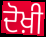
ਦੋਖ਼ੀ